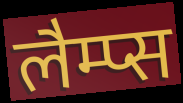
लैम्प्स